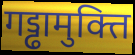
गड्ढामुक्ति